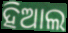
ହିଆଲ